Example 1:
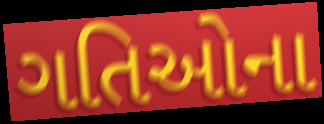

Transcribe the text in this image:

ગતિઓના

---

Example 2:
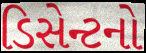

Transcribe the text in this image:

ડિસેન્ટનો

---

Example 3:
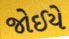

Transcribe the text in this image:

જોઈયે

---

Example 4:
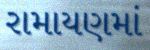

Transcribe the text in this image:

રામાયણમાં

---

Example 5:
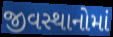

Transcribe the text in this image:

જીવસ્થાનોમાં